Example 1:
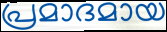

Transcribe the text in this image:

പ്രമാദമായ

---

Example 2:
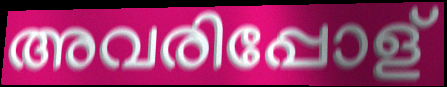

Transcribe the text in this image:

അവരിപ്പോള്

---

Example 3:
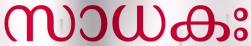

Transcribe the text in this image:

സാധകഃ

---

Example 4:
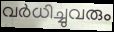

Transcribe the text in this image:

വർധിച്ചുവരും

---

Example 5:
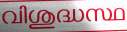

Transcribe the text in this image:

വിശുദ്ധസ്ഥ